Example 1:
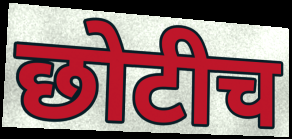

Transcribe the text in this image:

छोटीच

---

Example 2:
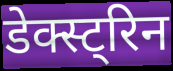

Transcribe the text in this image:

डेक्स्ट्रिन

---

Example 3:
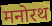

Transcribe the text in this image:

मनोरथ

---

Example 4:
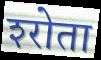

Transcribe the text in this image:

श्रोता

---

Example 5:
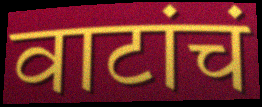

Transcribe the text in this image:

वाटांचं